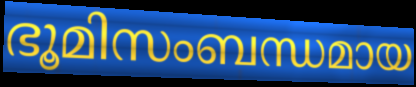
ഭൂമിസംബന്ധമായ